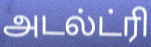
அடல்ட்ரி